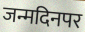
जन्मदिनपर